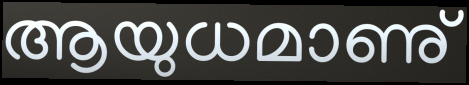
ആയുധമാണു്